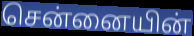
சென்னையின்